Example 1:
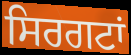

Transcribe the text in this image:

ਸਿਰਗਟਾਂ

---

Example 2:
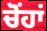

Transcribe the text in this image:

ਚੋਂਹਾਂ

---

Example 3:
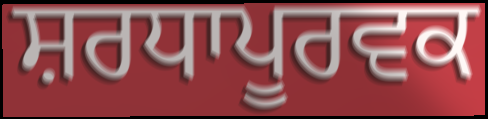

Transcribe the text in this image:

ਸ਼ਰਧਾਪੂਰਵਕ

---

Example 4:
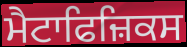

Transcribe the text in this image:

ਮੈਟਾਫਿਜ਼ਿਕਸ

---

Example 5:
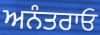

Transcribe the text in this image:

ਅਨੰਤਰਾਓ